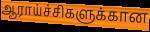
ஆராய்ச்சிகளுக்கான